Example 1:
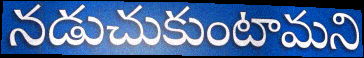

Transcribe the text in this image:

నడుచుకుంటామని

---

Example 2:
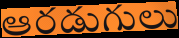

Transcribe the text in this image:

ఆరడుగులు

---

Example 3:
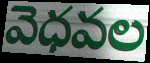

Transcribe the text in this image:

వెధవల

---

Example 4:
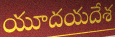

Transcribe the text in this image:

యూదయదేశ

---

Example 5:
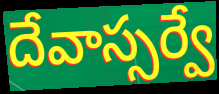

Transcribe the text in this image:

దేవాస్సర్వే